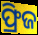
ଫ୍ରିଜ